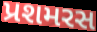
પ્રશમરસ